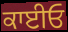
ਕਾਈਓ